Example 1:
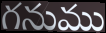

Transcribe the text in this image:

గనుము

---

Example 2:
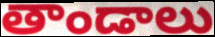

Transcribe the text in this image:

తాండాలు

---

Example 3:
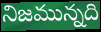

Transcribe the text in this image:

నిజమున్నది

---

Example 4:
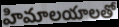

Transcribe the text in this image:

హిమాలయాలతో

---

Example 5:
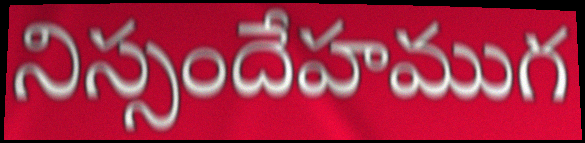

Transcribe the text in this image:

నిస్సందేహముగ